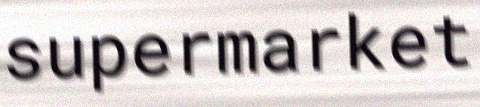
supermarket